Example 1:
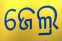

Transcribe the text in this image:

ଜେଲ୍ର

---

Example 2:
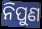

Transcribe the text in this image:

ନିପୁଣ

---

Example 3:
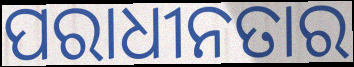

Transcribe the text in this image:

ପରାଧୀନତାର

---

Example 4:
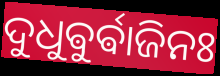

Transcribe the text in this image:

ଦୁଧୁଵୁର୍ଵାଜିନଃ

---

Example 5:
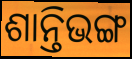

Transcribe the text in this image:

ଶାନ୍ତିଭଙ୍ଗ